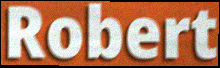
Robert